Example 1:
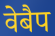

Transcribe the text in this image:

वेबैप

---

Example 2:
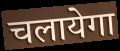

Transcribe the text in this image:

चलायेगा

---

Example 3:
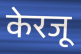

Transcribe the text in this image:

केरजू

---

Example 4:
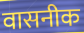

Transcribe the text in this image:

वासनीक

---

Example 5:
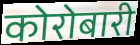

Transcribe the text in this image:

कोरोबारी